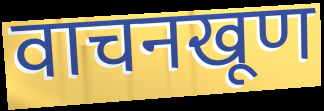
वाचनखूण